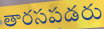
తారసపడరు